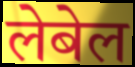
लेबेल